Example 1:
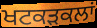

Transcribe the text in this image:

ਖਟਕੜਕਲਾਂ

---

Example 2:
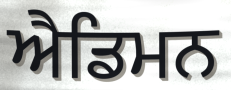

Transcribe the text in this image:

ਐਡਿਮਨ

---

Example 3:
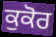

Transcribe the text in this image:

ਕੁਕੋਰ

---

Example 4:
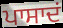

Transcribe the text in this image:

ਪਾਸਾਦਂ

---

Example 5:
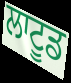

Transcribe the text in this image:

ਲਾਟੂਡ